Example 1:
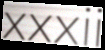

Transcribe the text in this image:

xxxii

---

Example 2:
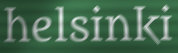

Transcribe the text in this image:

helsinki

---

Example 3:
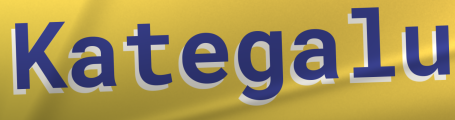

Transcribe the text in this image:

Kategalu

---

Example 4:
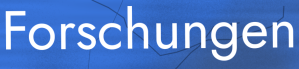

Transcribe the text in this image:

Forschungen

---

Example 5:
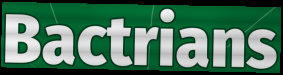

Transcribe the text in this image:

Bactrians